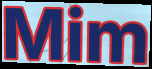
Mim